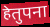
हेतुपना